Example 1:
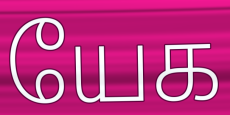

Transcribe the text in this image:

யேக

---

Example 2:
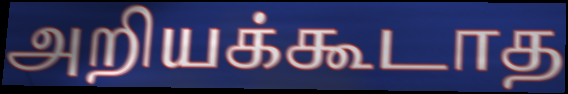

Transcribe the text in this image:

அறியக்கூடாத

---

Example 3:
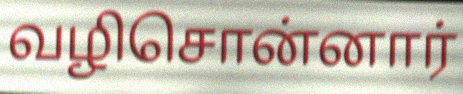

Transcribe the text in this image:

வழிசொன்னார்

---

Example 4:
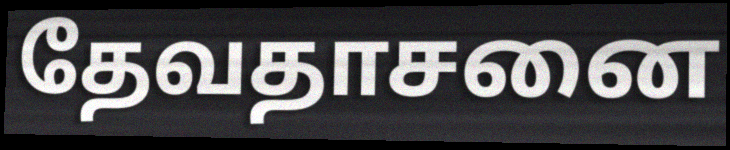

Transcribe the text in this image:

தேவதாசனை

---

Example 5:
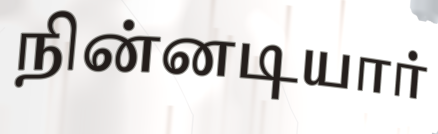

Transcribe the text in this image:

நின்னடியார்